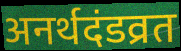
अनर्थदंडव्रत